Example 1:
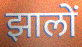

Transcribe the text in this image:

झालों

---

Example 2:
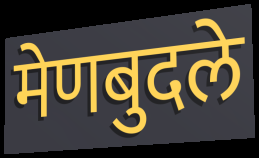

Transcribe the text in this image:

मेणबुदले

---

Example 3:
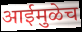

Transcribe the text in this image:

आईमुळेच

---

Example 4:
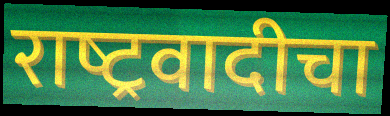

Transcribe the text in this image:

राष्ट्रवादीचा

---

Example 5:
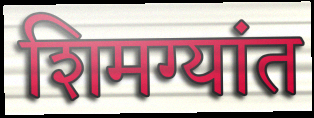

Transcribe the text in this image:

शिमग्यांत